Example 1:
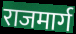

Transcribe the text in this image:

राजमार्ग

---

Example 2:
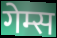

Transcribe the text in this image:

गेम्स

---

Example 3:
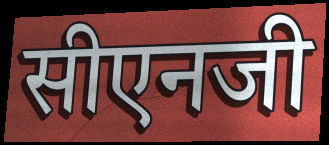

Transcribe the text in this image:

सीएनजी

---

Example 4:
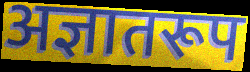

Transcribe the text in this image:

अज्ञातरूप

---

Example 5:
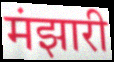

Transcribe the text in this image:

मंझारी